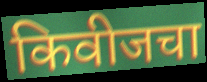
किवीजचा